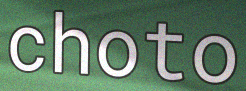
choto